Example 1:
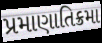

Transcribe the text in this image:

પ્રમાણાતિક્રમા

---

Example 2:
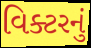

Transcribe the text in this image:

વિક્ટરનું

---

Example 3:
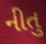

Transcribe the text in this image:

નીતુ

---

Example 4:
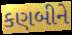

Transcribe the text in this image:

કણબીને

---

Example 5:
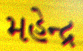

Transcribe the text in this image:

મહેન્દ્ર